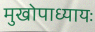
मुखोपाध्यायः